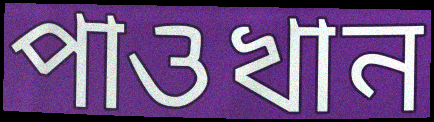
পাওখান